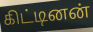
கிட்டினன்